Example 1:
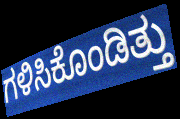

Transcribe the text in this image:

ಗಳಿಸಿಕೊಂಡಿತ್ತು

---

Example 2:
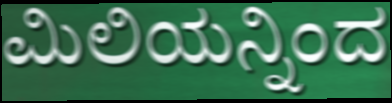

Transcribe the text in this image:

ಮಿಲಿಯನ್ನಿಂದ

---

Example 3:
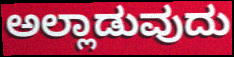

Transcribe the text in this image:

ಅಲ್ಲಾಡುವುದು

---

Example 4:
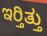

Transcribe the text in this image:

ಇರ್‍ತಿತ್ತು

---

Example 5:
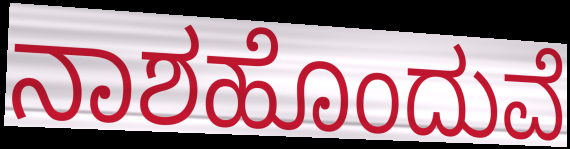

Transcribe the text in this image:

ನಾಶಹೊಂದುವೆ